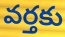
వర్తకు